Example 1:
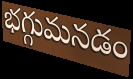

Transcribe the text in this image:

భగ్గుమనడం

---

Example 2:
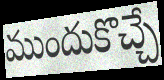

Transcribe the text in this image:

ముందుకొచ్చే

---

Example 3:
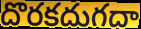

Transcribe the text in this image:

దొరకదుగదా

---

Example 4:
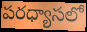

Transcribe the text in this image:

పరధ్యాసలో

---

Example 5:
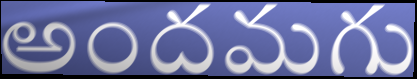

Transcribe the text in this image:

అందమగు